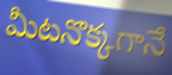
మీటనొక్కగానే